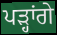
ਪੜ੍ਹਾਂਗੇ